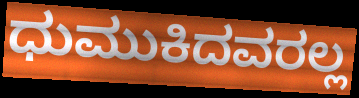
ಧುಮುಕಿದವರಲ್ಲ